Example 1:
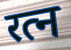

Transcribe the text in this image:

रत्न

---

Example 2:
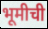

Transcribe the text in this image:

भूमीची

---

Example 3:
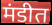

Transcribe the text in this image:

मंडीत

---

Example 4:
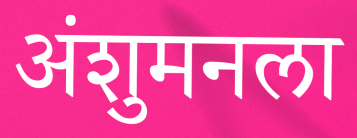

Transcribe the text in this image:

अंशुमनला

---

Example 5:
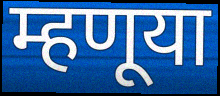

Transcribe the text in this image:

म्हणूया